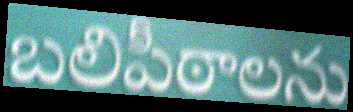
బలిపీఠాలను